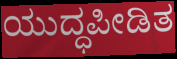
ಯುದ್ಧಪೀಡಿತ